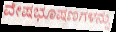
ವೇಷಭೂಷಣಗಳನ್ನು